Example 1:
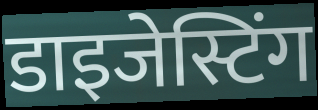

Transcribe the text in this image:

डाइजेस्टिंग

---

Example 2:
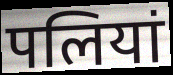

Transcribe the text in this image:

पलियां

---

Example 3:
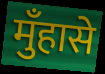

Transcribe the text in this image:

मुँहासे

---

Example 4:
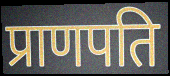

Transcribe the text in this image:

प्राणपति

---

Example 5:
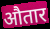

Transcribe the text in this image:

औतार